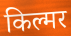
किल्मर